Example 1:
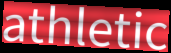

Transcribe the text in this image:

athletic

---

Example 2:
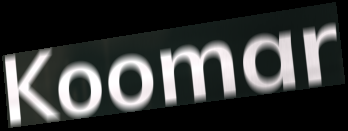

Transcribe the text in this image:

Koomar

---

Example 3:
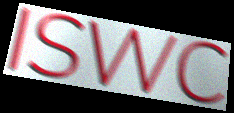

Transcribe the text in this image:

ISWC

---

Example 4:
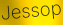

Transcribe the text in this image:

Jessop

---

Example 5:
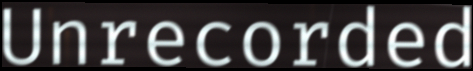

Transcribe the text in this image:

Unrecorded